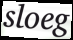
sloeg